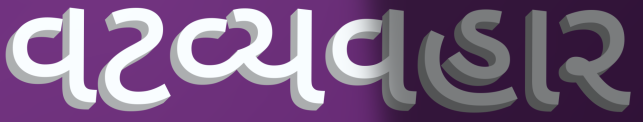
વટવ્યવહાર